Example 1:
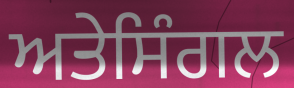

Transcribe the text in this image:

ਅਤੇਸਿੰਗਲ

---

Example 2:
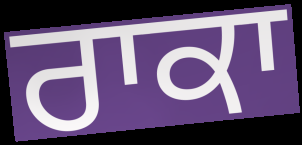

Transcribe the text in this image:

ਰਾਕਾ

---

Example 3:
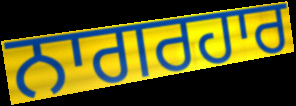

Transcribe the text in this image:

ਨਾਗਰਹਾਰ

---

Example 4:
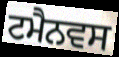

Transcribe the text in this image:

ਟਮੈਨਵਸ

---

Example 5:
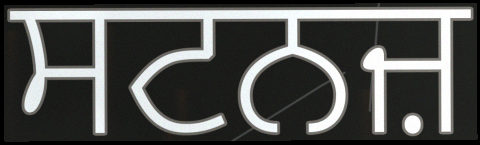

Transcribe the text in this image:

ਸਟਨਜ਼